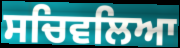
ਸਚਿਵਲਿਆ